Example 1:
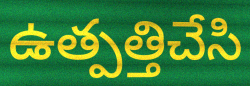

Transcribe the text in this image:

ఉత్పత్తిచేసి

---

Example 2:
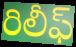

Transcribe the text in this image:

రిలీఫ్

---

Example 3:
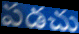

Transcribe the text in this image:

పడచు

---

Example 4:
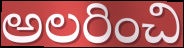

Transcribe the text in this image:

అలరించి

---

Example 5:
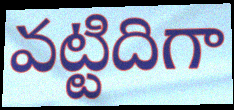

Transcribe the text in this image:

వట్టిదిగా